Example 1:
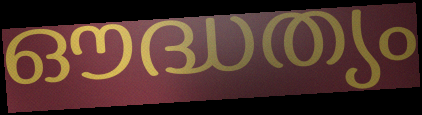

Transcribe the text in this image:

ഔദ്ധത്യം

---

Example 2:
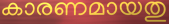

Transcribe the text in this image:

കാരണമായതു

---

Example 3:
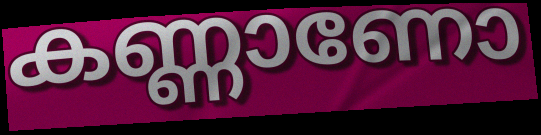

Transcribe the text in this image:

കണ്ണാണോ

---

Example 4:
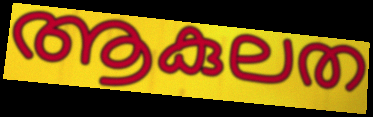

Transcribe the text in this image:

ആകുലത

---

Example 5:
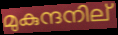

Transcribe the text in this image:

മുകുന്ദനില്